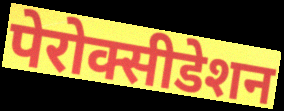
पेरोक्सीडेशन